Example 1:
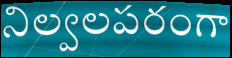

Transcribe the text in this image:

నిల్వలపరంగా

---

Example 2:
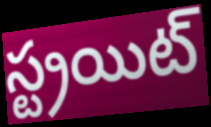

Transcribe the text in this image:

స్ట్రయిట్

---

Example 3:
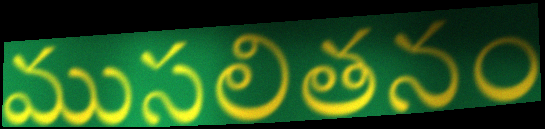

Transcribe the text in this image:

ముసలితనం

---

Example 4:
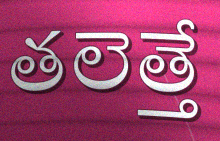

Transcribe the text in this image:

తలెత్తే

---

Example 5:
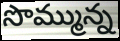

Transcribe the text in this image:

సొమ్మున్న